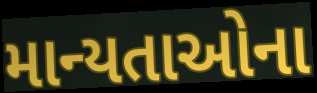
માન્યતાઓના